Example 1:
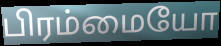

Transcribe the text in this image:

பிரம்மையோ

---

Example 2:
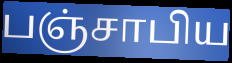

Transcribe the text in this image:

பஞ்சாபிய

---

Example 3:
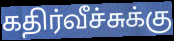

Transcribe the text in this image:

கதிர்வீச்சுக்கு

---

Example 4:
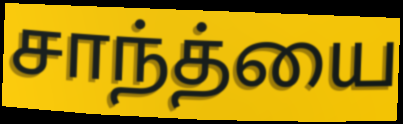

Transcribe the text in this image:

சாந்த்யை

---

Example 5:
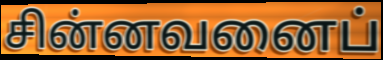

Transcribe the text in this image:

சின்னவனைப்